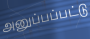
அனுப்பப்பட்டு